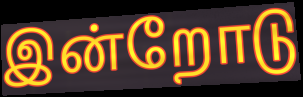
இன்றோடு